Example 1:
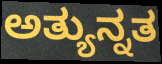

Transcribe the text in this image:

ಅತ್ಯುನ್ನತ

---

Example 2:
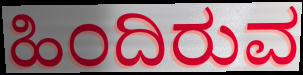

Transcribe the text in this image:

ಹಿಂದಿರುವ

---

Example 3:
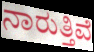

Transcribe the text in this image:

ನಾರುತ್ತಿವೆ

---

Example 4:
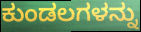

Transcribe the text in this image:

ಕುಂಡಲಗಳನ್ನು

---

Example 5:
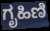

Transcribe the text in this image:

ಗೃಹಿಣಿ